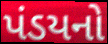
પંડયનો